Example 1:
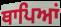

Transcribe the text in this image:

ਥਾਪਿਆਂ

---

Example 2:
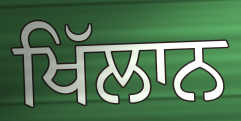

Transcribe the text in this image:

ਖਿੱਲਾਨ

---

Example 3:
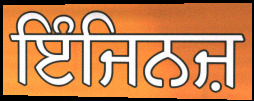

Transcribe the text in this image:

ਇੰਜਿਨਜ਼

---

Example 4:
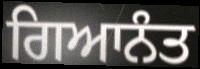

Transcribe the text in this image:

ਗਿਆਨੰਤ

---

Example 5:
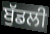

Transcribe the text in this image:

ਬੁੱਡਲੀ